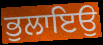
ਭੁਲਾਇਉ